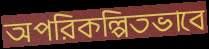
অপরিকল্পিতভাবে